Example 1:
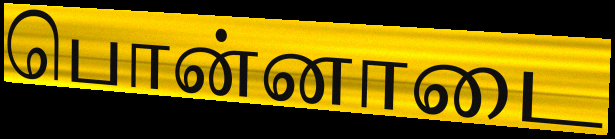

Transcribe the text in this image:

பொன்னாடை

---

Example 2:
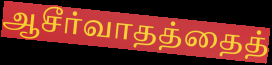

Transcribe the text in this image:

ஆசீர்வாதத்தைத்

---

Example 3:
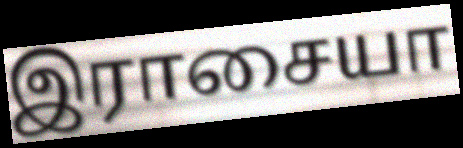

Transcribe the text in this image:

இராசையா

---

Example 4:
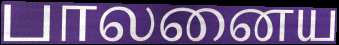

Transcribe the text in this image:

பாலனைய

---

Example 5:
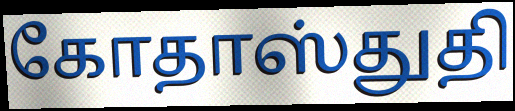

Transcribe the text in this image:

கோதாஸ்துதி